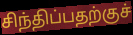
சிந்திப்பதற்குச்